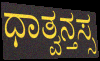
ಧಾತ್ವನ್ತಸ್ಸ